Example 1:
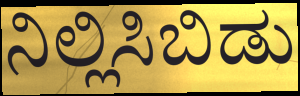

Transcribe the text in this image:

ನಿಲ್ಲಿಸಿಬಿಡು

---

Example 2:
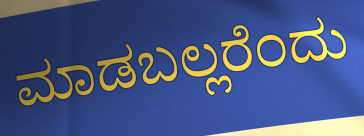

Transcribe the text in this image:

ಮಾಡಬಲ್ಲರೆಂದು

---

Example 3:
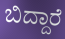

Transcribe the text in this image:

ಬಿದ್ದಾರೆ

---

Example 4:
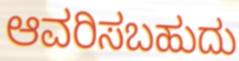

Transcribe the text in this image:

ಆವರಿಸಬಹುದು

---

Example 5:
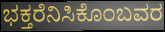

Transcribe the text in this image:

ಭಕ್ತರೆನಿಸಿಕೊಂಬವರ